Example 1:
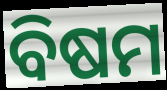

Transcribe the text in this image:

ବିଷମ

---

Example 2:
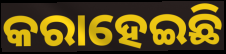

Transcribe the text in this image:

କରାହେଇଛି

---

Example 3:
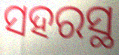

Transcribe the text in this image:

ସହରସ୍ଥ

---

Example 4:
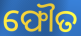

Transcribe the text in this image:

ଫୌତ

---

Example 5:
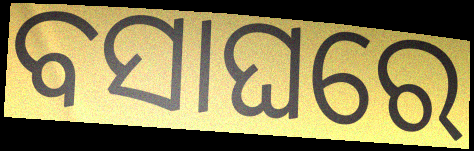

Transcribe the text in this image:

ବସାଘରେ